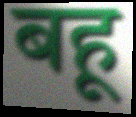
बहू